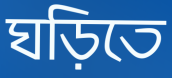
ঘড়িতে